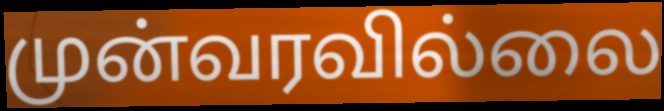
முன்வரவில்லை